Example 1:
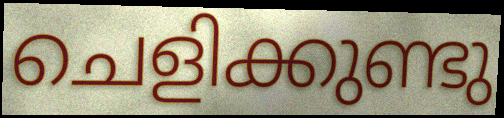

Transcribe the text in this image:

ചെളിക്കുണ്ടു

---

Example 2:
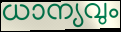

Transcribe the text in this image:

ധാന്യവും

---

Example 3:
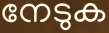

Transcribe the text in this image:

നേടുക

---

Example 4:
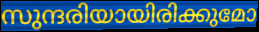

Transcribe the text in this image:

സുന്ദരിയായിരിക്കുമോ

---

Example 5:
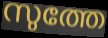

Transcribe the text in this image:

സുത്തേ